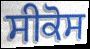
ਸੀਕੋਸ